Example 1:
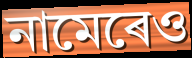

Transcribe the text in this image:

নামেৰেও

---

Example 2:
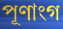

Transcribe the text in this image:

পূণাংগ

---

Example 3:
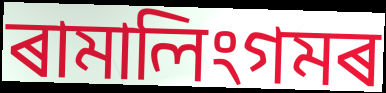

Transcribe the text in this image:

ৰামালিংগমৰ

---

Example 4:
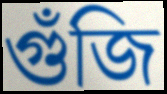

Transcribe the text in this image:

গুঁজি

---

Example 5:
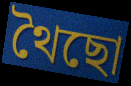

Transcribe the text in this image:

থৈছো